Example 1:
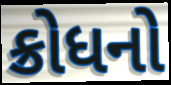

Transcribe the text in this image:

ક્રોધનો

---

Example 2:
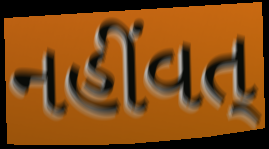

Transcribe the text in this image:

નહીંવત્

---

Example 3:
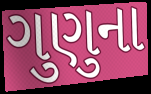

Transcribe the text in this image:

ગુણુના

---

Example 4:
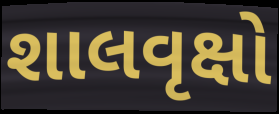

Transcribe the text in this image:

શાલવૃક્ષો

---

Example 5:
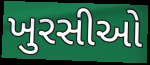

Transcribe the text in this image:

ખુરસીઓ